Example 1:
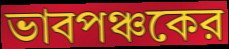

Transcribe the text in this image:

ভাবপঞ্চকের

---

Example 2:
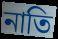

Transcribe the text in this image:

নাতি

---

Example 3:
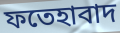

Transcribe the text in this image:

ফতেহাবাদ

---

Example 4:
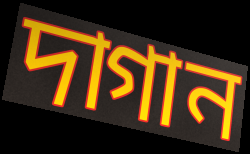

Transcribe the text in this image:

দাগান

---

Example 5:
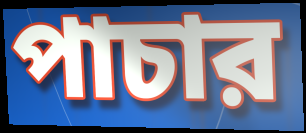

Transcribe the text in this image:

পাচার